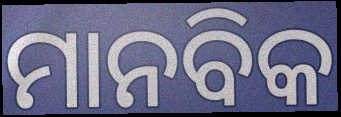
ମାନବିକ